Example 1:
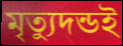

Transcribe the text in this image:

মৃত্যুদন্ডই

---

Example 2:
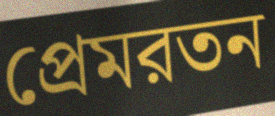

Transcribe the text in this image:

প্রেমরতন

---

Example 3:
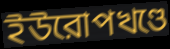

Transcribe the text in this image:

ইউরোপখণ্ডে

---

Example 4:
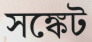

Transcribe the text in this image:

সঙ্কেট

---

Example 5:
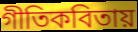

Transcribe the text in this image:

গীতিকবিতায়